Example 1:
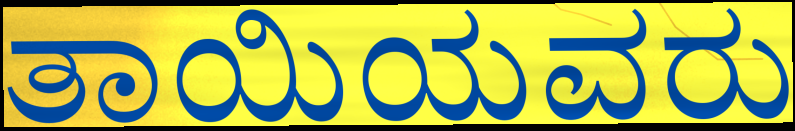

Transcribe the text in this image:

ತಾಯಿಯವರು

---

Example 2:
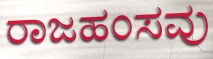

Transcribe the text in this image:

ರಾಜಹಂಸವು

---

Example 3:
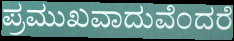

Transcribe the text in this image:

ಪ್ರಮುಖವಾದುವೆಂದರೆ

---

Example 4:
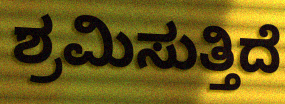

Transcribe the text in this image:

ಶ್ರಮಿಸುತ್ತಿದೆ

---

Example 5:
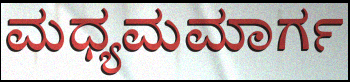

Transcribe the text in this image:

ಮಧ್ಯಮಮಾರ್ಗ